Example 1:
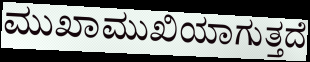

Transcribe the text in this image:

ಮುಖಾಮುಖಿಯಾಗುತ್ತದೆ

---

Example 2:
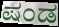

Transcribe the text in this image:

ಷಂಡ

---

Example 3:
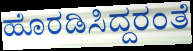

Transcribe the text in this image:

ಹೊರಡಿಸಿದ್ದರಂತೆ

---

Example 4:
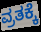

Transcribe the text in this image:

ವ್ರತಕ್ಕೆ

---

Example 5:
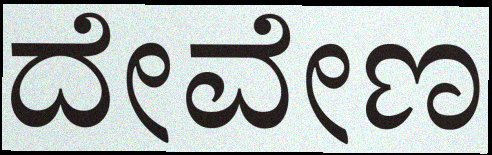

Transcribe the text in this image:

ದೇವೇಣ